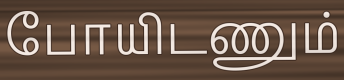
போயிடணும்